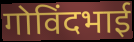
गोविंदभाई